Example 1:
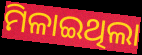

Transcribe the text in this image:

ମିଳାଇଥିଲା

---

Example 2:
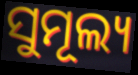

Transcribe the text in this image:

ସୁମୂଲ୍ୟ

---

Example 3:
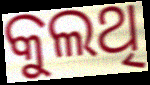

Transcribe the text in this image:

କୁଲଥି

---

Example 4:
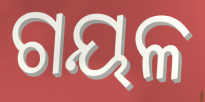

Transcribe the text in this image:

ଗୟଳ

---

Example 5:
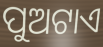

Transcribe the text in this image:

ପୁଅଟାଏ